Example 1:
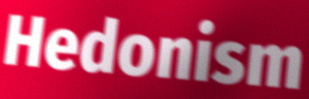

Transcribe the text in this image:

Hedonism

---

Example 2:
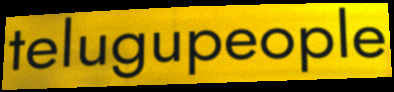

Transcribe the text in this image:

telugupeople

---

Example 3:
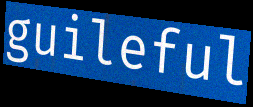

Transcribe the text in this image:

guileful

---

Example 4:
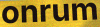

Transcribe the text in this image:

onrum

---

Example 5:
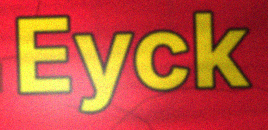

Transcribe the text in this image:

Eyck